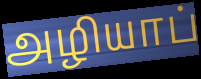
அழியாப்